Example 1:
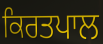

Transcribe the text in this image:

ਕਿਰਤਪਾਲ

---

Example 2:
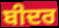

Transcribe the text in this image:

ਬੀਦਰ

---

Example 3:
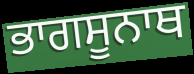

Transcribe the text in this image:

ਭਾਗਸੂਨਾਥ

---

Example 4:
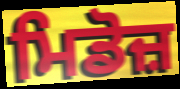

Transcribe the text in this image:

ਮਿਡੋਜ਼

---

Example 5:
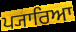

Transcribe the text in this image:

ਪ੍ਯਾਰਿਆ